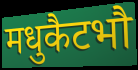
मधुकैटभौ